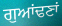
ਗੁਆਂਢਣਾਂ